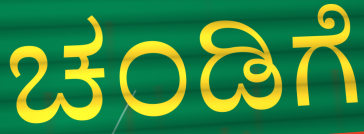
ಚಂಡಿಗೆ